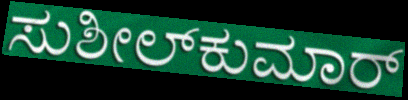
ಸುಶೀಲ್‌ಕುಮಾರ್